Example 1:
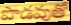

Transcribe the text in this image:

పొడవుతో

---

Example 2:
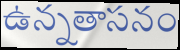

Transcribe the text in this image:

ఉన్నతాసనం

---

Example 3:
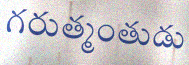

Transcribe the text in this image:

గరుత్మంతుడు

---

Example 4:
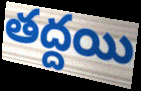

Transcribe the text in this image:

తద్దయి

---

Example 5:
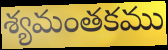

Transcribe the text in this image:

శ్యమంతకము